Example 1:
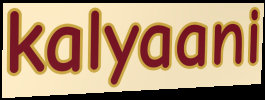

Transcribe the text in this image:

kalyaani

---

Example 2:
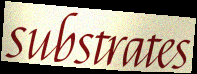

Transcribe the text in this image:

substrates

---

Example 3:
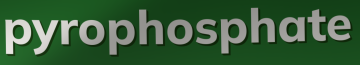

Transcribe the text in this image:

pyrophosphate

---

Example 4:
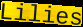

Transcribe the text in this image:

Lilies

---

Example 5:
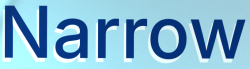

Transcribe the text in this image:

Narrow